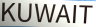
KUWAIT